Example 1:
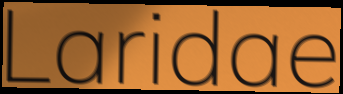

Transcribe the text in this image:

Laridae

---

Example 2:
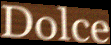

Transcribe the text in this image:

Dolce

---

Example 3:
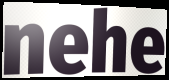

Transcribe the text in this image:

nehe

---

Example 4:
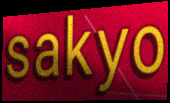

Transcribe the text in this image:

sakyo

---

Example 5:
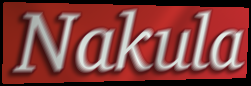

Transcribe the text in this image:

Nakula